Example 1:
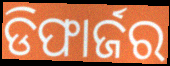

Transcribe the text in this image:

ଡିଫାର୍ଜର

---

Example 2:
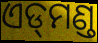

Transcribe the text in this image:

ଏଡ୍‌ମଣ୍ଡ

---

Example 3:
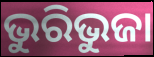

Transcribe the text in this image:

ଭୁରିଭୁଜା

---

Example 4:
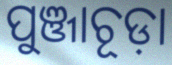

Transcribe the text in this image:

ପୁଞ୍ଜାଚୂଡ଼ା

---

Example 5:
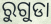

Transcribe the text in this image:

ରୁଗୁଡା